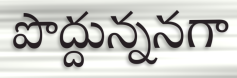
పొద్దున్ననగా